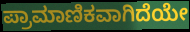
ಪ್ರಾಮಾಣಿಕವಾಗಿದೆಯೇ